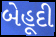
બેહૂદી